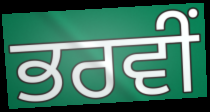
ਭਰਵੀਂ